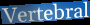
Vertebral